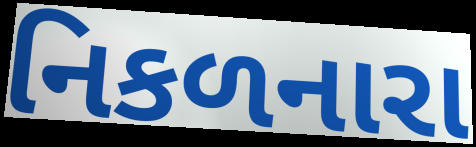
નિકળનારા